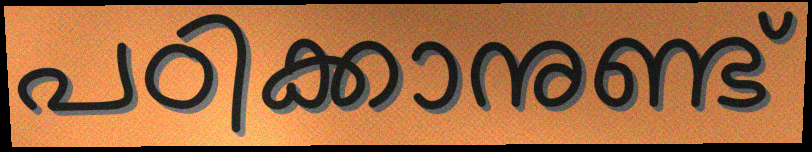
പഠിക്കാനുണ്ട്